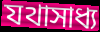
যথাসাধ্য